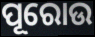
ପୂରୋଉ